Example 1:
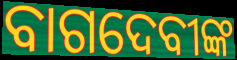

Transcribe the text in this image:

ବାଗଦେବୀଙ୍କ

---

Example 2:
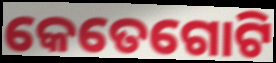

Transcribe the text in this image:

କେତେଗୋଟି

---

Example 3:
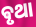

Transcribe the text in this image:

ଵୃଥା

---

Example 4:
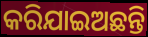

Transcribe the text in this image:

କରିଯାଇଅଛନ୍ତି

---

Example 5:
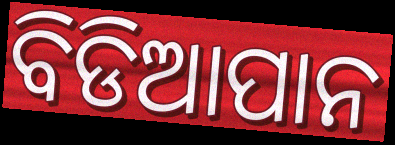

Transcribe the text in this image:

ବିଡିଆପାନ